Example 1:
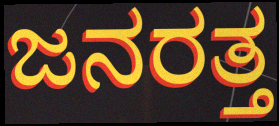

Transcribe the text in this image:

ಜನರತ್ತ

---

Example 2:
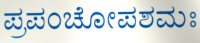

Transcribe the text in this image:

ಪ್ರಪಂಚೋಪಶಮಃ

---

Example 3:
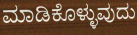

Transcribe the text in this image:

ಮಾಡಿಕೊಳ್ಳುವುದು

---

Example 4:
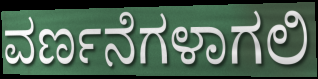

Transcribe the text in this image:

ವರ್ಣನೆಗಳಾಗಲಿ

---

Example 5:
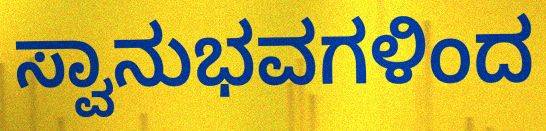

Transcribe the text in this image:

ಸ್ವಾನುಭವಗಳಿಂದ